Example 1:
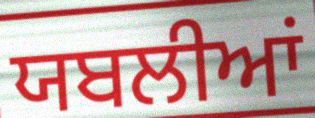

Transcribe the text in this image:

ਯਬਲੀਆਂ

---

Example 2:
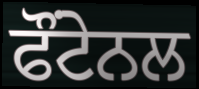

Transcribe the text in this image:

ਫੌਂਟੇਨਲ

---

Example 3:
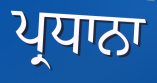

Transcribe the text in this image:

ਪ੍ਰਧਾਨਾ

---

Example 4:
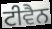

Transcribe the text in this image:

ਟੀਵੈਨ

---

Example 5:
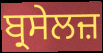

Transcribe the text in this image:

ਬ੍ਰਸੇਲਜ਼